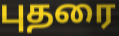
புதரை